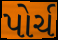
પોર્ચ